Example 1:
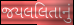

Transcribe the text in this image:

જયલલિતાનું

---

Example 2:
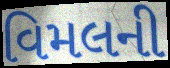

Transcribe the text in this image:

વિમલની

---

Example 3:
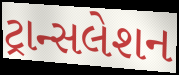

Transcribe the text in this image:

ટ્રાન્સલેશન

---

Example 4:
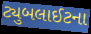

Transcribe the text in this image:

ટ્યુબલાઈટના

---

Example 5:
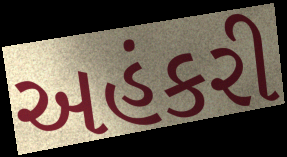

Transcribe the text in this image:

અહંકરી